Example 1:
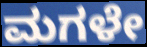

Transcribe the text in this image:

ಮಗಳೇ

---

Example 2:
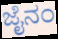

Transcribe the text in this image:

ಜೈನಂ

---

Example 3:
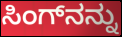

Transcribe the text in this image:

ಸಿಂಗ್‌ನನ್ನು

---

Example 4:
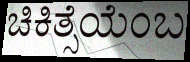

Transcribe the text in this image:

ಚಿಕಿತ್ಸೆಯೆಂಬ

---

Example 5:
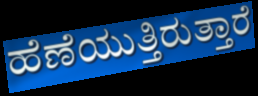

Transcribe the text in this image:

ಹೆಣೆಯುತ್ತಿರುತ್ತಾರೆ